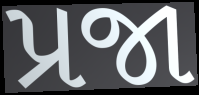
પ્રજા